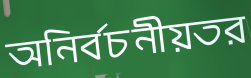
অনির্বচনীয়তর